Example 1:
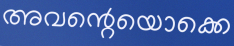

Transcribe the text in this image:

അവന്റെയൊക്കെ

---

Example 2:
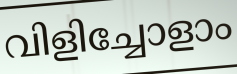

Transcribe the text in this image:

വിളിച്ചോളാം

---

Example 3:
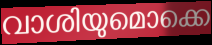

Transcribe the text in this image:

വാശിയുമൊക്കെ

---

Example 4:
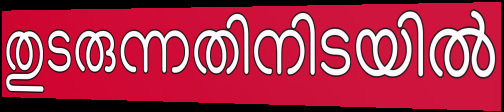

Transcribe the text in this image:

തുടരുന്നതിനിടയിൽ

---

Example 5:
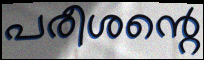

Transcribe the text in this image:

പരീശന്റെ